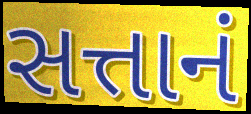
સત્તાનં